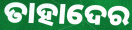
ତାହାଦେର